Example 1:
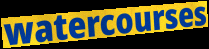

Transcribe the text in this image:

watercourses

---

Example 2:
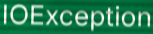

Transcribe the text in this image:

IOException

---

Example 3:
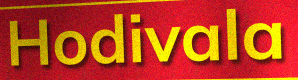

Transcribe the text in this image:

Hodivala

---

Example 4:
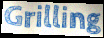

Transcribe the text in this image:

Grilling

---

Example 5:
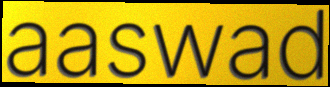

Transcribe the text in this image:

aaswad